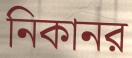
নিকানর